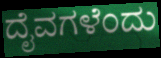
ದೈವಗಳೆಂದು